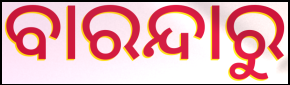
ବାରନ୍ଦାରୁ